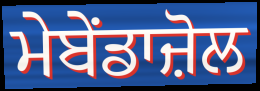
ਮੇਬੇਂਡਾਜ਼ੋਲ